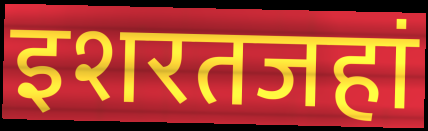
इशरतजहां